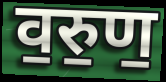
व॒रु॒ण॒